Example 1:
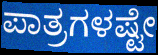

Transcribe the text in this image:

ಪಾತ್ರಗಳಷ್ಟೇ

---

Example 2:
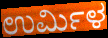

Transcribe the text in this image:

ಉರ್ಮಿಳ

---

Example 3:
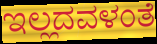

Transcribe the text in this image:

ಇಲ್ಲದವಳಂತೆ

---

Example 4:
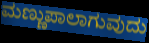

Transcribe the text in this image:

ಮಣ್ಣುಪಾಲಾಗುವುದು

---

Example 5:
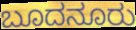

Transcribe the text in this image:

ಬೂದನೂರು